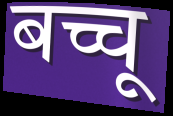
बच्चू